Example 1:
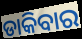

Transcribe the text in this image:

ଡାକିବାର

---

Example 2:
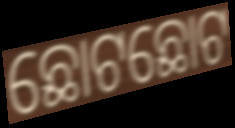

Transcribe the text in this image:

ଛୋଟଛୋଟ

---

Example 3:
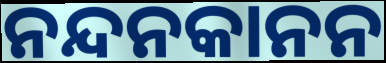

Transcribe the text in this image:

ନନ୍ଦନକାନନ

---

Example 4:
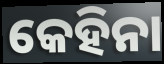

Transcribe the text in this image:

କେହିନା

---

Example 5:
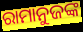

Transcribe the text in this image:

ରାମାନୁଜଙ୍କ